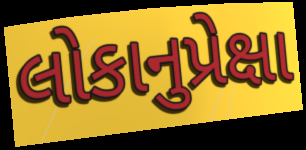
લોકાનુપ્રેક્ષા